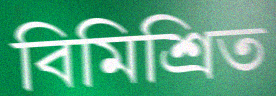
বিমিশ্রিত